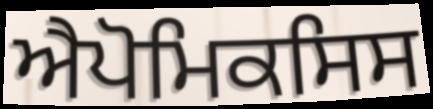
ਐਪੋਮਿਕਸਿਸ